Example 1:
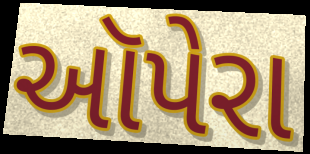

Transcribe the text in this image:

ઑપેરા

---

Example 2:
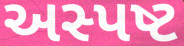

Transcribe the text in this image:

અસ્પષ્ટ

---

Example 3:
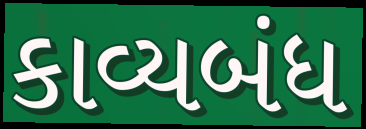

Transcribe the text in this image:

કાવ્યબંધ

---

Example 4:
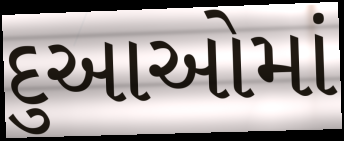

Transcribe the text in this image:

દુઆઓમાં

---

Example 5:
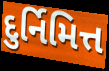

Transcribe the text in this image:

દુર્નિમિત્ત